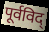
पूर्वविद्